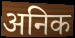
अनिक